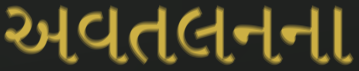
અવતલનના